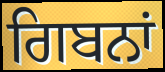
ਗਿਬਨਾਂ